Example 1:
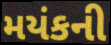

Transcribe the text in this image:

મયંકની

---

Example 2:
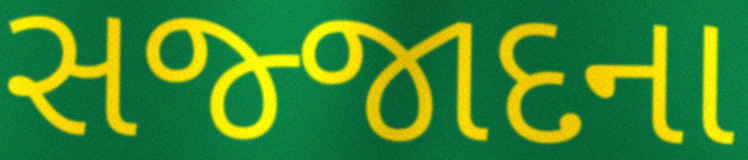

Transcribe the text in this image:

સજ્જાદના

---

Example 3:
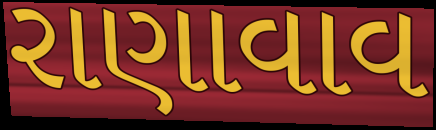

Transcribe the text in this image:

રાણાવાવ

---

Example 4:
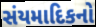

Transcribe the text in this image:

સંયમાદિકનો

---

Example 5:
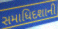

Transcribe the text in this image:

સમાધિદશાની